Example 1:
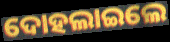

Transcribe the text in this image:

ଦୋହଲାଇଲେ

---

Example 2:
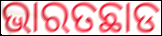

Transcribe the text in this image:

ଭାରତଛାଡ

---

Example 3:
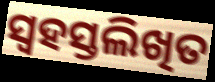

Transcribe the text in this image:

ସ୍ୱହସ୍ତଲିଖିତ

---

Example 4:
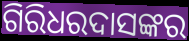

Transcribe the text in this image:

ଗିରିଧରଦାସଙ୍କର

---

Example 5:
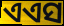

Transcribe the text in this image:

ଏଏସ